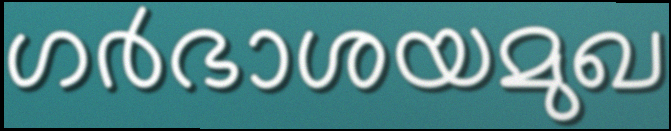
ഗർഭാശയമുഖ